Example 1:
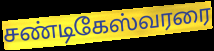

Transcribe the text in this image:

சண்டிகேஸ்வரரை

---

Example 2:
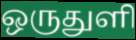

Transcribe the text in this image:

ஒருதுளி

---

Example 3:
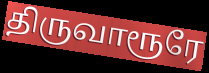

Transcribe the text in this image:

திருவாரூரே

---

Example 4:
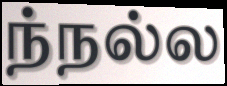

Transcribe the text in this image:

ந்நல்ல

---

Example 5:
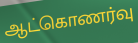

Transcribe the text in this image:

ஆட்கொணர்வு